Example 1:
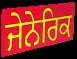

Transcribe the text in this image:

ਜੇਨੇਰਿਕ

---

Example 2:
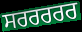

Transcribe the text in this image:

ਸਰਰਰਰਰ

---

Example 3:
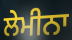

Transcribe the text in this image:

ਲੇਮੀਨਾ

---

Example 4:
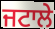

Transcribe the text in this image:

ਜਟਾਲੇ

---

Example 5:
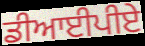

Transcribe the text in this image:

ਡੀਆਈਪੀਏ